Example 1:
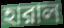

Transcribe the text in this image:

হারাল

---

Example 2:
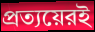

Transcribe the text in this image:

প্রত্যয়েরই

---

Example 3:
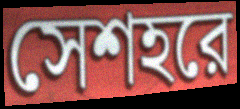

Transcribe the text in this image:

সেশহরে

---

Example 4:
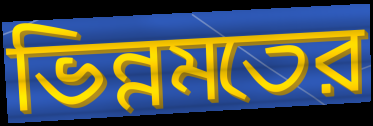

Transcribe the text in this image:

ভিন্নমতের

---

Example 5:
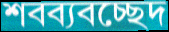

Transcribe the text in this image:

শবব্যবচ্ছেদ